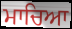
ਮਾਚਿਆ